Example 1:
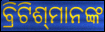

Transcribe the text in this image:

ବ୍ରିଟିଶ୍‌ମାନଙ୍କ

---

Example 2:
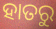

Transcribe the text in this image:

ହାତରୁ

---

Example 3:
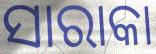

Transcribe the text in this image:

ସାରାକା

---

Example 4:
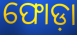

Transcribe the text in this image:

ଫୋଡ଼ା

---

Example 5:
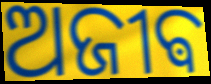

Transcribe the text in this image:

ଅଜୀଵ